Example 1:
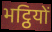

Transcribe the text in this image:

भट्ठियों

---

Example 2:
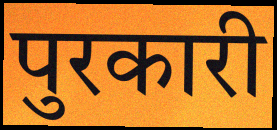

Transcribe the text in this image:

पुरकारी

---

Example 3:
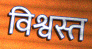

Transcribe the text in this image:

विश्वस्त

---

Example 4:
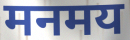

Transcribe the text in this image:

मनमय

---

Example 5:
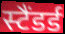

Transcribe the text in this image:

स्टैंडर्ड